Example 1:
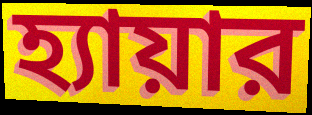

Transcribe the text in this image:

হ্যায়ার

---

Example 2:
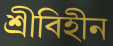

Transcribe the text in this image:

শ্রীবিহীন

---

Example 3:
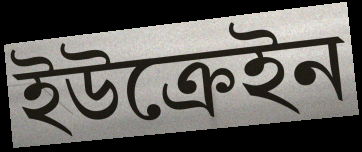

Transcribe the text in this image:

ইউক্রেইন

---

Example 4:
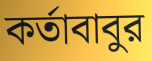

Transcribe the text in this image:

কর্তাবাবুর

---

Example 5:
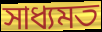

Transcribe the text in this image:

সাধ্যমত